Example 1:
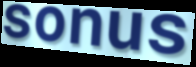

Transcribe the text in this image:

sonus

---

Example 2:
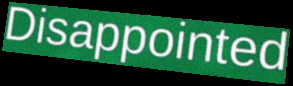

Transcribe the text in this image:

Disappointed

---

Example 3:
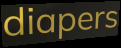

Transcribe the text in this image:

diapers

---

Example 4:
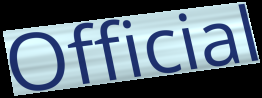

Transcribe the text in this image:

Official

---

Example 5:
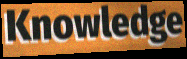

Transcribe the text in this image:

Knowledge